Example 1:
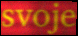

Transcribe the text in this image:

svoje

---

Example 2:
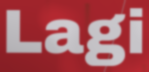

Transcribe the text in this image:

Lagi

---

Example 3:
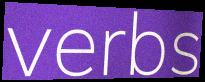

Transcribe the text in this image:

verbs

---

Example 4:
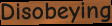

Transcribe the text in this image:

Disobeying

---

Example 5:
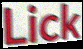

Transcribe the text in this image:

Lick